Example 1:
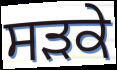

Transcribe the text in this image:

ਸਡ਼ਕੇ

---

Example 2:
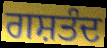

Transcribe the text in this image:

ਗਸ਼ਤੰਦ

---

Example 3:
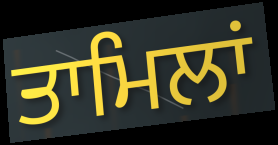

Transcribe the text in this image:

ਤਾਮਿਲਾਂ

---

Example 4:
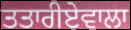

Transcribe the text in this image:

ਤਤਾਰੀਏਵਾਲਾ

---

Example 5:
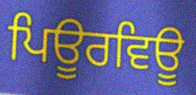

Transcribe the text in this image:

ਪਿਊਰਵਿਊ